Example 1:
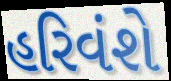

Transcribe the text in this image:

હરિવંશે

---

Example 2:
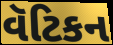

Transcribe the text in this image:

વૅટિકન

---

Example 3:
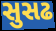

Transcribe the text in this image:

સુસઢ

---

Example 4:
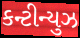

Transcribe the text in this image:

કન્ટીન્યુઝ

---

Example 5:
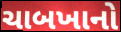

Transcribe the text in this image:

ચાબખાનો